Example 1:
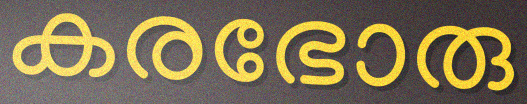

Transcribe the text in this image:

കരഭോരു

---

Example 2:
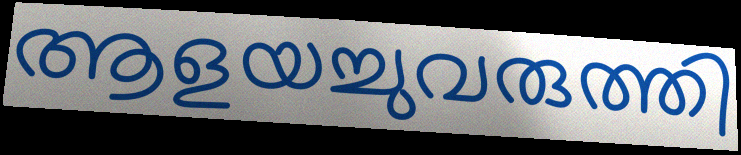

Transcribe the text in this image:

ആളയച്ചുവരുത്തി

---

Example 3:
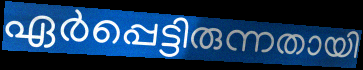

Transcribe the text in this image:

ഏർപ്പെട്ടിരുന്നതായി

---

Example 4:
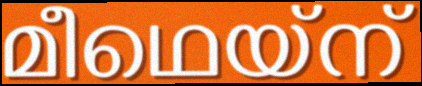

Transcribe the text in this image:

മീഥെയ്ന്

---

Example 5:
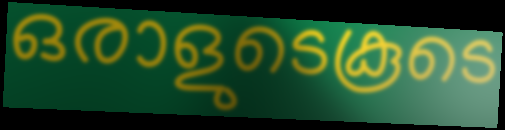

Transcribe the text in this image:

ഒരാളുടെകൂടെ